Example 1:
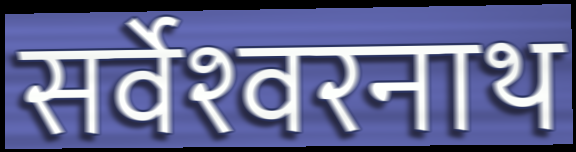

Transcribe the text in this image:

सर्वेश्वरनाथ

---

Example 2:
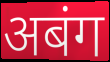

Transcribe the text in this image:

अबंग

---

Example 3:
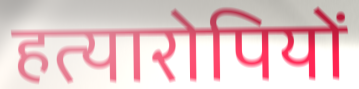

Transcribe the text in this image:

हत्‍यारोपियों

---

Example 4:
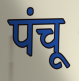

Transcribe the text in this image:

पंचू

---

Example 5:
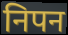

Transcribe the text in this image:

निपन